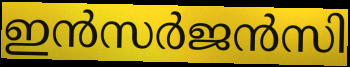
ഇൻസർജൻസി